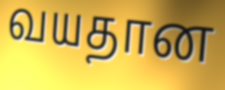
வயதான